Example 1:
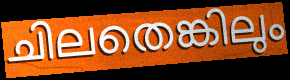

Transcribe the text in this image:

ചിലതെങ്കിലും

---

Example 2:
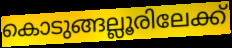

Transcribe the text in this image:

കൊടുങ്ങല്ലൂരിലേക്ക്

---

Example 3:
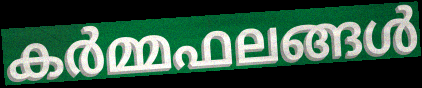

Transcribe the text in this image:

കർമ്മഫലങ്ങൾ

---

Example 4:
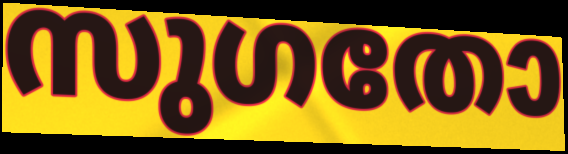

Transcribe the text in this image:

സുഗതോ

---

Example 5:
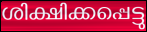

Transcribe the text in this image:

ശിക്ഷിക്കപ്പെട്ടു